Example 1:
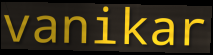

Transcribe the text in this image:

vanikar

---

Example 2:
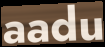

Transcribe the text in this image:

aadu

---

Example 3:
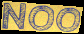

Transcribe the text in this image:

NOO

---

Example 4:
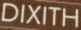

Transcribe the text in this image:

DIXITH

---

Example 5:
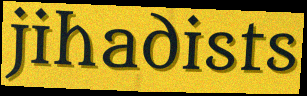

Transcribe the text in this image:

jihadists